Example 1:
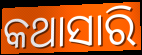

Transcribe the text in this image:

କଥାସାରି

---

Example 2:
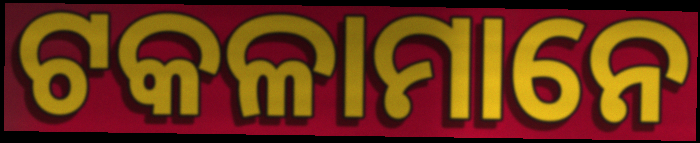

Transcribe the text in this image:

ଟକଳାମାନେ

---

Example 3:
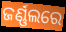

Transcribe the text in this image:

ଜର୍ଣ୍ଣଲରେ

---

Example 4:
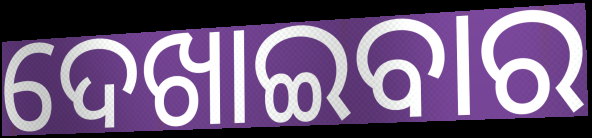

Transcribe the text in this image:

ଦେଖାଇବାର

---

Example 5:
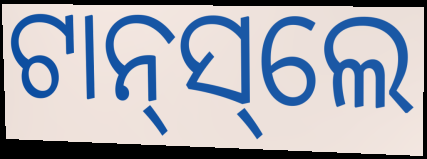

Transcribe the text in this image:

ଟାନ୍‌ସ୍‌ଲେ